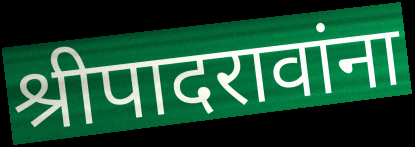
श्रीपादरावांना